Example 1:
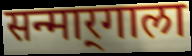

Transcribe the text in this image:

सन्मार्गाला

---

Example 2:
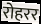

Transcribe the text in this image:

रोहरर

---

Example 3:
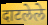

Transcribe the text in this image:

दाटलेले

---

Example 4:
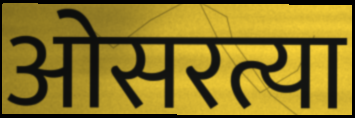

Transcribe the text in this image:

ओसरत्या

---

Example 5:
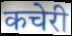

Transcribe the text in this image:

कचेरी